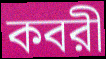
কবরী